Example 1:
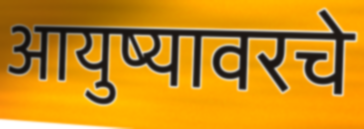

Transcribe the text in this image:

आयुष्यावरचे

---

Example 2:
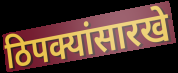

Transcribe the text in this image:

ठिपक्यांसारखे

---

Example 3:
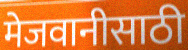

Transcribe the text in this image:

मेजवानीसाठी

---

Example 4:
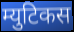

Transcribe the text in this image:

म्युटिकस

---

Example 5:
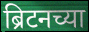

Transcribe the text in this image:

ब्रिटनच्या